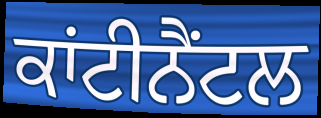
ਕਾਂਟੀਨੈਂਟਲ